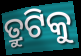
ତ୍ରୁଟିକୁ